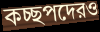
কচ্ছপদেরও